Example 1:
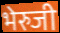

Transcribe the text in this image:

भेरुजी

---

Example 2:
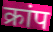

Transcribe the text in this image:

क्रांप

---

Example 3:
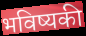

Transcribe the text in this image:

भविष्यकी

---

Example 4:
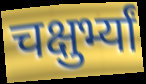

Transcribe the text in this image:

चक्षुर्भ्यां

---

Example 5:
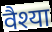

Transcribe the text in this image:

वैश्या